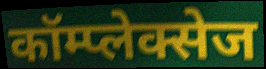
कॉम्प्लेक्सेज